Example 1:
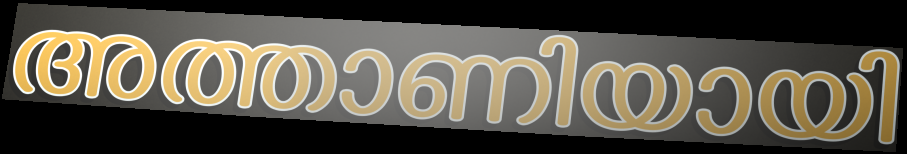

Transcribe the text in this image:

അത്താണിയായി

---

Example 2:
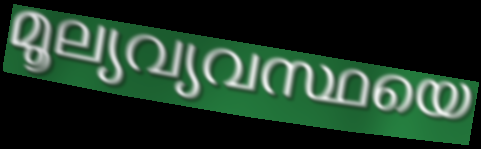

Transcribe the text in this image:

മൂല്യവ്യവസ്ഥയെ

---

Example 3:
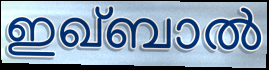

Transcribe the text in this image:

ഇഖ്ബാൽ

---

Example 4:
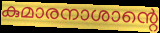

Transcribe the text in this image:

കുമാരനാശാന്റെ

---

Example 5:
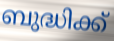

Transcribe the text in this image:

ബുദ്ധിക്ക്